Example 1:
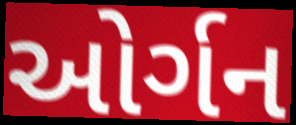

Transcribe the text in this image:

ઓર્ગન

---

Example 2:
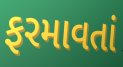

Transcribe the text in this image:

ફરમાવતાં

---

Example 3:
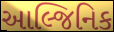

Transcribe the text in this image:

આલ્જિનિક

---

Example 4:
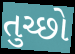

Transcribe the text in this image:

તુચ્છો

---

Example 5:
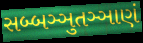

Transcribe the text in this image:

સબ્બઞ્ઞુતઞ્ઞાણં